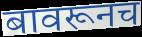
बावरूनच